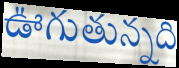
ఊగుతున్నది